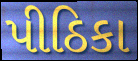
પીઠિકા